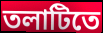
তলাটিতে